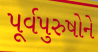
પૂર્વપુરુષોને